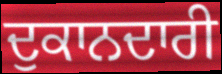
ਦੁਕਾਨਦਾਰੀ